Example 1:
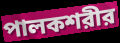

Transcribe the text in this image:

পালকশরীর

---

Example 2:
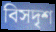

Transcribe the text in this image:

বিসদৃশ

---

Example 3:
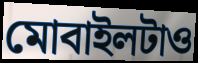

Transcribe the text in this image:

মোবাইলটাও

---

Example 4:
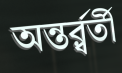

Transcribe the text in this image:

অন্তর্র্বর্তী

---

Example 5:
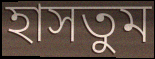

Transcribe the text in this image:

হাসতুম